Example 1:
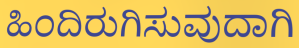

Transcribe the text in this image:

ಹಿಂದಿರುಗಿಸುವುದಾಗಿ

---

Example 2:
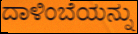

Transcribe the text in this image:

ದಾಳಿಂಬೆಯನ್ನು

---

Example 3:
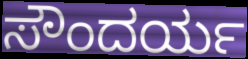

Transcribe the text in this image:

ಸೌಂದರ್ಯ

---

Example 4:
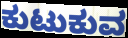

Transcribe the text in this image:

ಕುಟುಕುವ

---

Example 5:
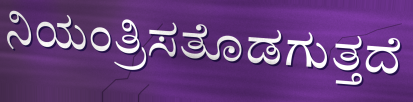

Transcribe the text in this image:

ನಿಯಂತ್ರಿಸತೊಡಗುತ್ತದೆ